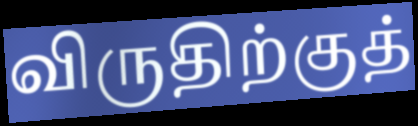
விருதிற்குத்